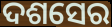
ଦଶସେର